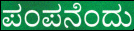
ಪಂಪನೆಂದು